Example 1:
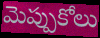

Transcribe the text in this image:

మెప్పుకోలు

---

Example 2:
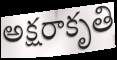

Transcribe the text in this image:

అక్షరాకృతి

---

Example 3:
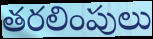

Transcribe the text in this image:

తరలింపులు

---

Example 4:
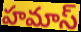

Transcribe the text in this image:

హమాస్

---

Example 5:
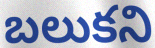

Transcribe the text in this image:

బలుకని